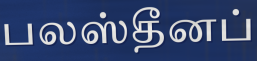
பலஸ்தீனப்